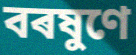
বৰষুণে